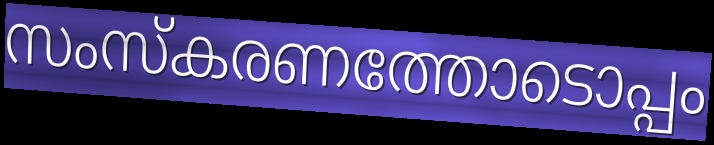
സംസ്കരണത്തോടൊപ്പം